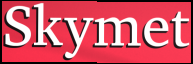
Skymet